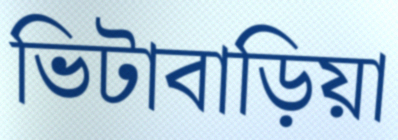
ভিটাবাড়িয়া